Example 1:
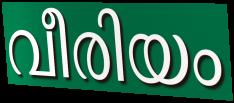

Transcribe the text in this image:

വീരിയം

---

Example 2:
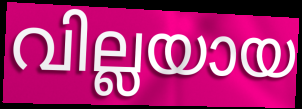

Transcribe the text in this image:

വില്ലയായ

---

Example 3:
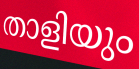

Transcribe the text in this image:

താളിയും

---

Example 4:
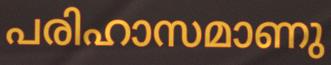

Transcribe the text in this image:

പരിഹാസമാണു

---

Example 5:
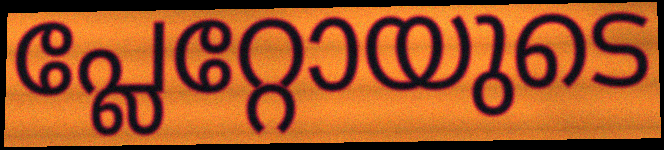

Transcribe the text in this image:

പ്ലേറ്റോയുടെ